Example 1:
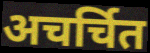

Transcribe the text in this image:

अचर्चित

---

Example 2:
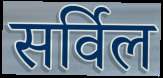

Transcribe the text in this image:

सर्विल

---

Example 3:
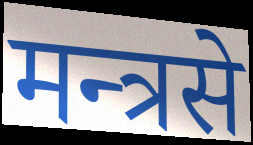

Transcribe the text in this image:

मन्त्रसे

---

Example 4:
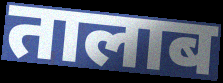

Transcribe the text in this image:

तालाब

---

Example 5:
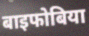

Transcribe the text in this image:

बाइफोबिया